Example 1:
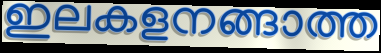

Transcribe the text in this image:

ഇലകളനങ്ങാത്ത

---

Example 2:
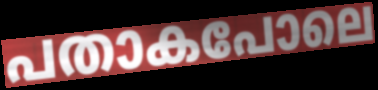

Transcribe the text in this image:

പതാകപോലെ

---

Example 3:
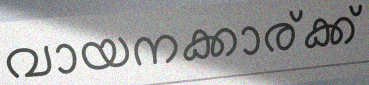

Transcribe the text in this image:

വായനക്കാര്ക്ക്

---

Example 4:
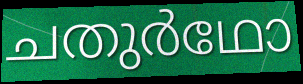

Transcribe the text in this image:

ചതുർഥോ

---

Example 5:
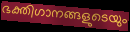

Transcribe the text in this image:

ഭക്തിഗാനങ്ങളുടെയും